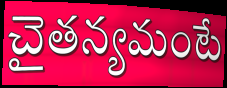
చైతన్యమంటే